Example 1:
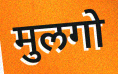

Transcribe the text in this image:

मुलगो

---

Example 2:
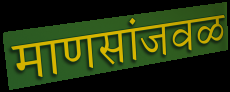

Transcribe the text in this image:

माणसांजवळ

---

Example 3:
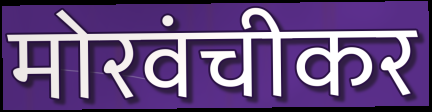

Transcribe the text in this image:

मोरवंचीकर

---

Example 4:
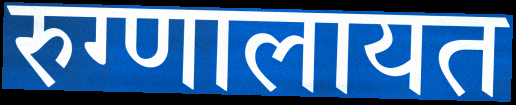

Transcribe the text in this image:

रुग्णालायत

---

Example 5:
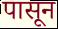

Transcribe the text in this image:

पासून